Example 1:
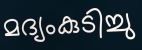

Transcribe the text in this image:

മദ്യംകുടിച്ചു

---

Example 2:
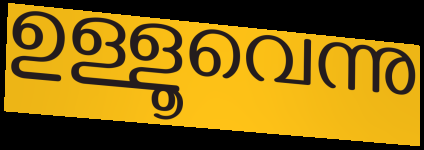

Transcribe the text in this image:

ഉള്ളൂവെന്നു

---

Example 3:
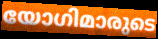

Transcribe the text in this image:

യോഗിമാരുടെ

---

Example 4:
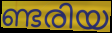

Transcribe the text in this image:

ണ്ടരിയ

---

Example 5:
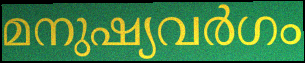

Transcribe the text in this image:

മനുഷ്യവർഗം